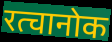
रत्चानोक